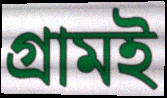
গ্রামই